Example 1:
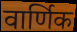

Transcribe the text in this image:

वार्णिक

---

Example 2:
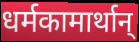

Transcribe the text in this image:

धर्मकामार्थान्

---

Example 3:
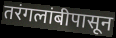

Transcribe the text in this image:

तरंगलांबीपासून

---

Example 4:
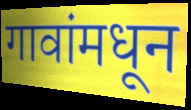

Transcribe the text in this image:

गावांमधून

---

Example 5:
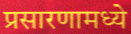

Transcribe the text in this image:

प्रसारणामध्ये